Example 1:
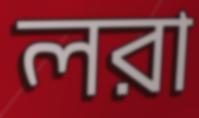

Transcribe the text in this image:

লরা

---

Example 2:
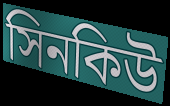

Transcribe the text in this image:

সিনকিউ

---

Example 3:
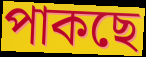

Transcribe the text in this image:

পাকছে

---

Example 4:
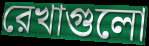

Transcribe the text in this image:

রেখাগুলো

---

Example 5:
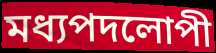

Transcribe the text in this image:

মধ্যপদলোপী